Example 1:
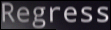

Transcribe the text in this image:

Regress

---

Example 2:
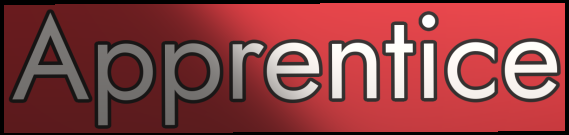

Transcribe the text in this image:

Apprentice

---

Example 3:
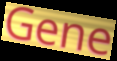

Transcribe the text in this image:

Gene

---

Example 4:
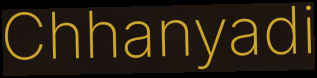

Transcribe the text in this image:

Chhanyadi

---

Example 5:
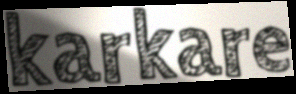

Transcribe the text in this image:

karkare